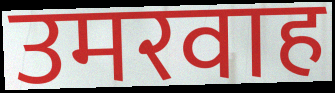
उमरवाह